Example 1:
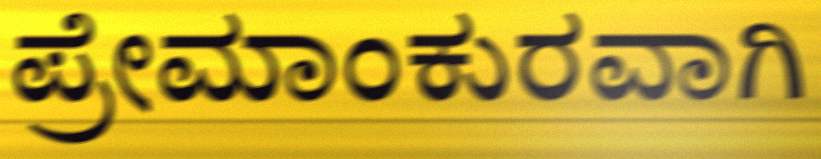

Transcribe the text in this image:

ಪ್ರೇಮಾಂಕುರವಾಗಿ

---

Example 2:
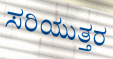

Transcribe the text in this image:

ಸರಿಯುತ್ತರ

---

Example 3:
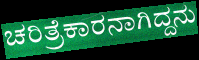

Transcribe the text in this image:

ಚರಿತ್ರೆಕಾರನಾಗಿದ್ದನು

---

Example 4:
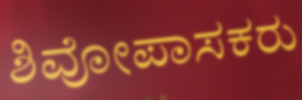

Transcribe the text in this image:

ಶಿವೋಪಾಸಕರು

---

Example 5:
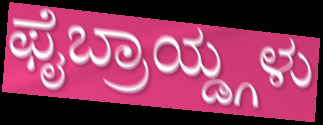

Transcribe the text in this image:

ಫೈಬ್ರಾಯ್ಡ್ಗಳು